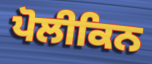
ਪੋਲੀਕਿਨ